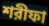
শরীফা